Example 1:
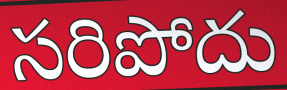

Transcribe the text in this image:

సరిపోదు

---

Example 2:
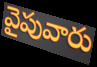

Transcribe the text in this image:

వైపువారు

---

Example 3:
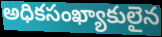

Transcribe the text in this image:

అధికసంఖ్యాకులైన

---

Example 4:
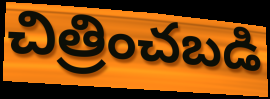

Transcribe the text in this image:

చిత్రించబడి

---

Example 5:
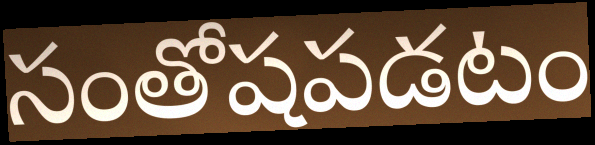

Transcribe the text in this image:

సంతోషపడటం